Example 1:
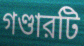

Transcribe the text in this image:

গণ্ডারটি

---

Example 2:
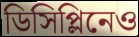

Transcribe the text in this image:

ডিসিপ্লিনেও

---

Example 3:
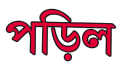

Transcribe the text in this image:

পড়িল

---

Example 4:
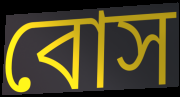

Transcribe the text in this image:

বোস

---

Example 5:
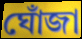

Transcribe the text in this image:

ঘোঁজা